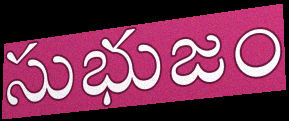
సుభుజం